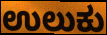
ಉಲುಕು